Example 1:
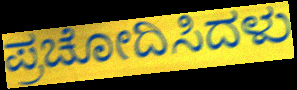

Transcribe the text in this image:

ಪ್ರಚೋದಿಸಿದಳು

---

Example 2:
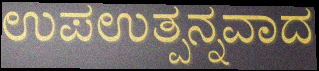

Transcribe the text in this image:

ಉಪಉತ್ಪನ್ನವಾದ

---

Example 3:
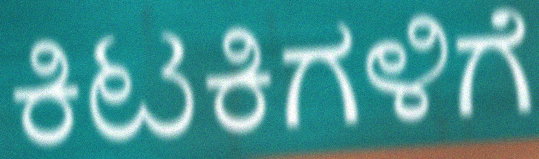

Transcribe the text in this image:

ಕಿಟಕಿಗಳಿಗೆ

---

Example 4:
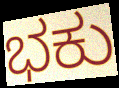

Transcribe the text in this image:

ಭಕು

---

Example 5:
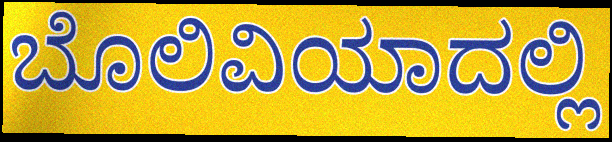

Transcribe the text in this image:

ಬೊಲಿವಿಯಾದಲ್ಲಿ